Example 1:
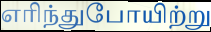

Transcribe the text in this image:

எரிந்துபோயிற்று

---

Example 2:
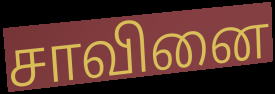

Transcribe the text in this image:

சாவினை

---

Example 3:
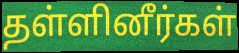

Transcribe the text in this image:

தள்ளினீர்கள்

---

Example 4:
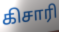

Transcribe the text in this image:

கிசாரி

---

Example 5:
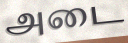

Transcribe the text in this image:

அடை